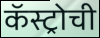
कॅस्ट्रोची